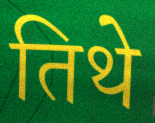
तिथे